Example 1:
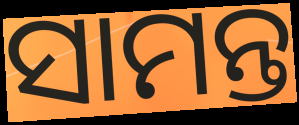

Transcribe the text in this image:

ସାମନ୍ତ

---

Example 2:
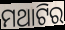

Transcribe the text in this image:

ମଥାଟିର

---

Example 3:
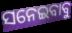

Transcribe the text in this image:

ସନେଇବାବୁ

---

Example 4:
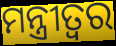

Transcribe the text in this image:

ମନ୍ତ୍ରୀତ୍ୱର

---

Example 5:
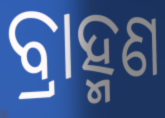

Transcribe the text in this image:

ବ୍ରାହ୍ମଣ